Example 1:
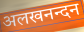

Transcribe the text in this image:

अलखनन्दन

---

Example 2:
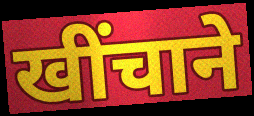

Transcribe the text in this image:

खींचाने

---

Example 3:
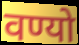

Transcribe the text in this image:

वण्यो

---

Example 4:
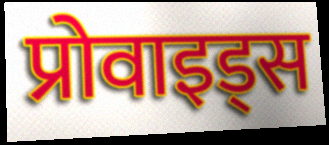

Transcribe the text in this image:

प्रोवाइड्स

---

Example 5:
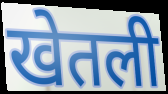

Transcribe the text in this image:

खेतली